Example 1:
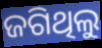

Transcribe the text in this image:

ଜଗିଥିଲୁ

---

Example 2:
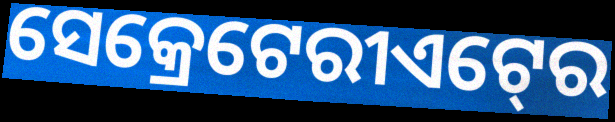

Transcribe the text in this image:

ସେକ୍ରେଟେରୀଏଟ୍‍ରେ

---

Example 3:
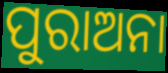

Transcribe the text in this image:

ପୁରାଅନା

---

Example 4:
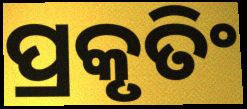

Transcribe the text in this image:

ପ୍ରକୃତିଂ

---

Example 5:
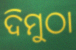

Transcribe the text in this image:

ଦିମୁଠା